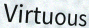
Virtuous